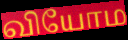
வியோம